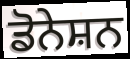
ਡੋਨੇਸ਼ਨ